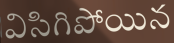
విసిగిపోయిన